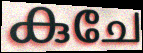
കുചേ